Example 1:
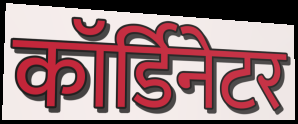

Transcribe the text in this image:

कॉर्डिनेटर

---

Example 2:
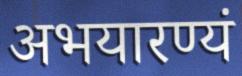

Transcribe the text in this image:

अभयारण्यं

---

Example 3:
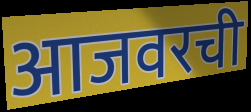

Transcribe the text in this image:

आजवरची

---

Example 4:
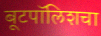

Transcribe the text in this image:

बूटपॉलिशचा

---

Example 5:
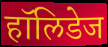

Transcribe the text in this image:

हॉलिडेज